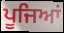
ਪੂਜਿਆਂ